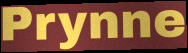
Prynne